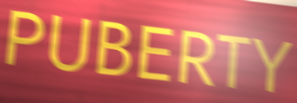
PUBERTY